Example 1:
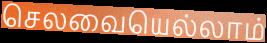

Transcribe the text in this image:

செலவையெல்லாம்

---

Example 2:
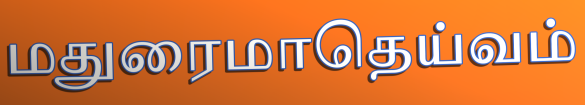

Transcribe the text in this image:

மதுரைமாதெய்வம்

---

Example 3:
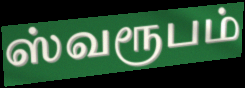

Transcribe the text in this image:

ஸ்வரூபம்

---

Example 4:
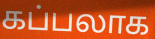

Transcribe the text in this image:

கப்பலாக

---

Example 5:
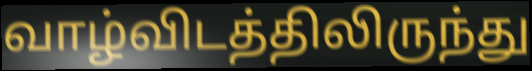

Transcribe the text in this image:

வாழ்விடத்திலிருந்து